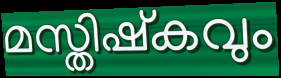
മസ്തിഷ്കവും